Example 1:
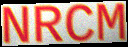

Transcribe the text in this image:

NRCM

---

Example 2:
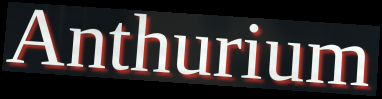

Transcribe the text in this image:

Anthurium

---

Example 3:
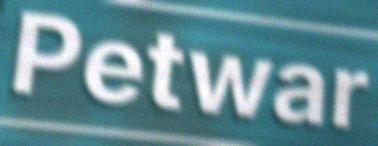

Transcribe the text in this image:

Petwar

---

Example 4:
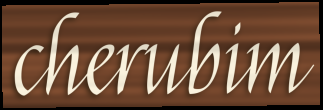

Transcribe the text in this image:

cherubim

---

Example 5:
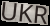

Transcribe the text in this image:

UKR